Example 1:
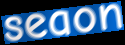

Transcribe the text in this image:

seaon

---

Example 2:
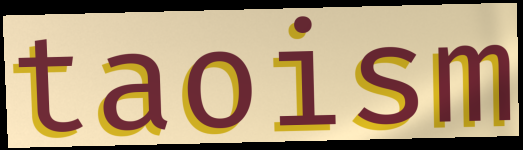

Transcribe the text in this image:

taoism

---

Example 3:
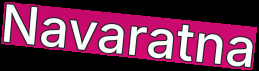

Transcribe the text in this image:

Navaratna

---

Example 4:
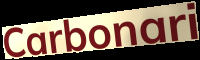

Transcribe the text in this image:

Carbonari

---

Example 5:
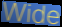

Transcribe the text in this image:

Wide